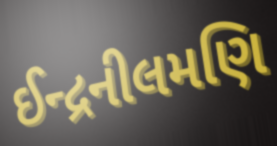
ઈન્દ્રનીલમણિ